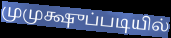
முமுக்ஷுப்படியில்